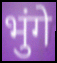
भुंगे